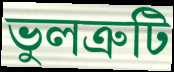
ভুলত্রুটি